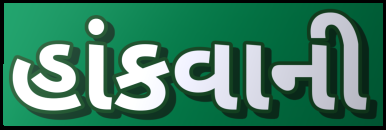
હાંકવાની